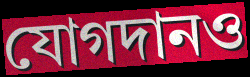
যোগদানও